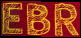
EBR